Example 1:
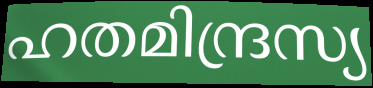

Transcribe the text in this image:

ഹതമിന്ദ്രസ്യ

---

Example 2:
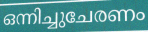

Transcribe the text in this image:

ഒന്നിച്ചുചേരണം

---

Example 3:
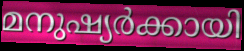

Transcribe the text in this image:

മനുഷ്യർക്കായി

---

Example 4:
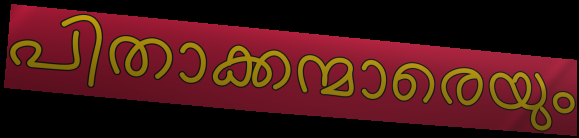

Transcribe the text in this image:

പിതാക്കന്മാരെയും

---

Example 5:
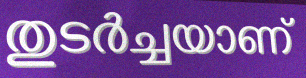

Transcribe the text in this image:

തുടർച്ചയാണ്